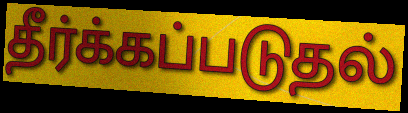
தீர்க்கப்படுதல்